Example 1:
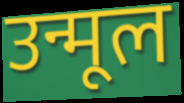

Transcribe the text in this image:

उन्मूल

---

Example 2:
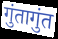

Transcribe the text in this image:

गुंतागुंत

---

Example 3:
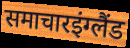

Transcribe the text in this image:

समाचारइंग्लैंड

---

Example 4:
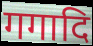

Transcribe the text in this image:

गगादि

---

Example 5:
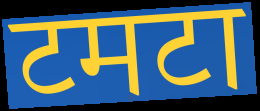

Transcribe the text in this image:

टमटा